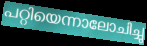
പറ്റിയെന്നാലോചിച്ചു